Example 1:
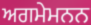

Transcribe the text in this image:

ਅਗਮੇਮਨਨ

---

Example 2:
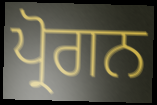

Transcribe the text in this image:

ਪ੍ਰੋਗਨ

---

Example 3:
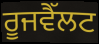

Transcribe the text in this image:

ਰੂਜਵੈੱਲਟ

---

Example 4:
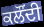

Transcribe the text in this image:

ਕਲੌਂਦੀ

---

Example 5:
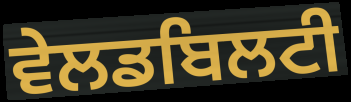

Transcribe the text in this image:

ਵੇਲਡਬਿਲਟੀ